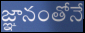
జ్ఞానంతోనే